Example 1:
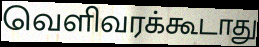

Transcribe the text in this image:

வெளிவரக்கூடாது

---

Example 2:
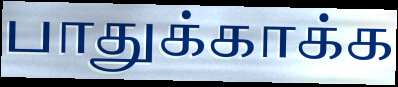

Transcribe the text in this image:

பாதுக்காக்க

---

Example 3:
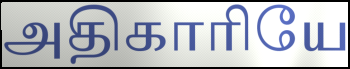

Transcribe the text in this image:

அதிகாரியே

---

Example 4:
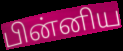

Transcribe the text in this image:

பின்னிய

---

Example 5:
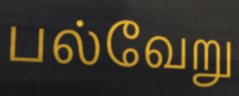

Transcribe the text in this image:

பல்வேறு